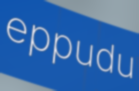
eppudu